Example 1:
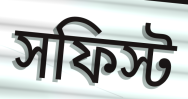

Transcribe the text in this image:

সফিস্ট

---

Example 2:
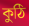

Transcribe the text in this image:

কুঠি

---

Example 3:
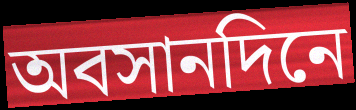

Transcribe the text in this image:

অবসানদিনে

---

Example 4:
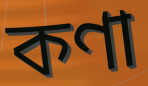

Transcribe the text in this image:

কণা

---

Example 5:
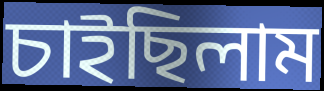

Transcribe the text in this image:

চাইছিলাম